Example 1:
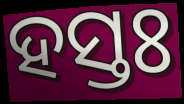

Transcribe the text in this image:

ହସ୍ତଃ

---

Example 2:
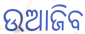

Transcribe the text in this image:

ଉଆଜିବ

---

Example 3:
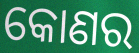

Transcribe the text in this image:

କୋଣର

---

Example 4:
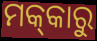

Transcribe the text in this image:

ମକ୍‌କାରୁ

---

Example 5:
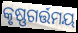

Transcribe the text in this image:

କୃଷ୍ଣଗର୍ତ୍ତମୟ